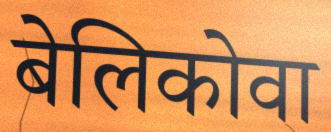
बेलिकोवा